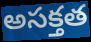
అసక్తత